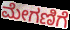
ಮೇಗಣಿಗೆ